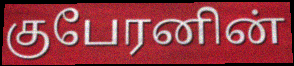
குபேரனின்